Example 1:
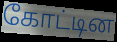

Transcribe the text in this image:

கோட்டின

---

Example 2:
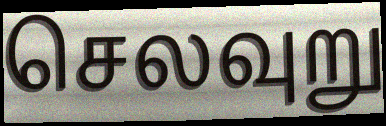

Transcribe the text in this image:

செலவுறு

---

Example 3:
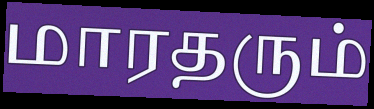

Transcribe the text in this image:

மாரதரும்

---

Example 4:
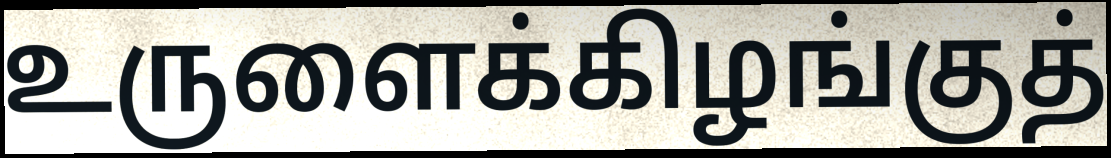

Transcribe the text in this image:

உருளைக்கிழங்குத்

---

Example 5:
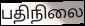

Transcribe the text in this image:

பதிநிலை